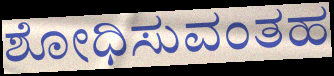
ಶೋಧಿಸುವಂತಹ